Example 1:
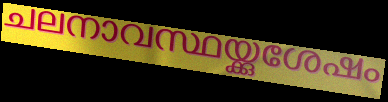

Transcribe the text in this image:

ചലനാവസ്ഥയ്ക്കുശേഷം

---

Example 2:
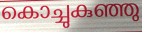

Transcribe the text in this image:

കൊച്ചുകുഞ്ഞു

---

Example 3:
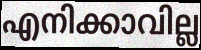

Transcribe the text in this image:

എനിക്കാവില്ല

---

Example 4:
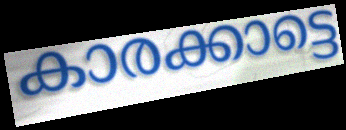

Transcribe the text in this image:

കാരക്കാട്ടെ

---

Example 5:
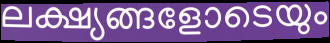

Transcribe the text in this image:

ലക്ഷ്യങ്ങളോടെയും